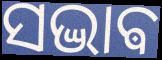
ସଦ୍ଭାଵ